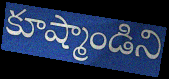
కూష్మాండిని